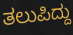
ತಲುಪಿದ್ದು